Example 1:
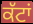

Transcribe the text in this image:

ਕੱਟਾਂ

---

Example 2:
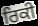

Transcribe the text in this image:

ਰਿਕੀ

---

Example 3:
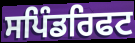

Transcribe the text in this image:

ਸਪਿੰਡਰਿਫਟ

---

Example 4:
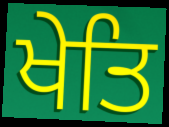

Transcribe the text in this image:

ਖੇਤਿ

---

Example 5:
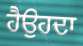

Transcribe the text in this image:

ਹੈਉਹਦਾ